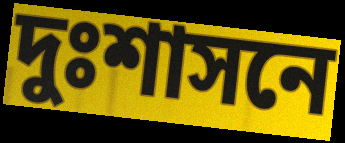
দুঃশাসনে